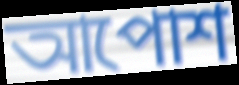
আপোশ